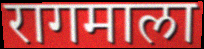
रागमाला